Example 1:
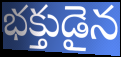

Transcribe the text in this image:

భక్తుడైన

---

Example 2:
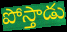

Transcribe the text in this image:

పోస్తాడు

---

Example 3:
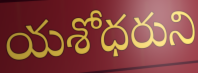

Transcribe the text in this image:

యశోధరుని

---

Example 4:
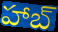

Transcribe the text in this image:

హాబ్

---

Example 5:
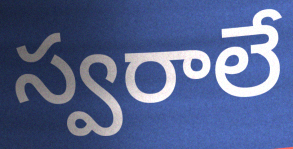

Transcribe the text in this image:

స్వరాలే